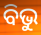
ବିଭୁ